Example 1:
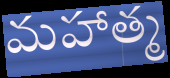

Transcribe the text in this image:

మహాత్మ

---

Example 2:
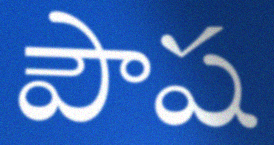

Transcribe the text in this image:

పౌష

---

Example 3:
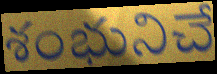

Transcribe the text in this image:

శంభునిచే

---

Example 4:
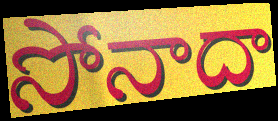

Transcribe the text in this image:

సోనాదా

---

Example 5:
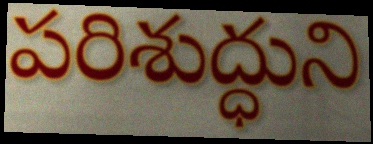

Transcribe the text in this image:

పరిశుద్ధుని